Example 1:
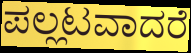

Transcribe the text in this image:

ಪಲ್ಲಟವಾದರೆ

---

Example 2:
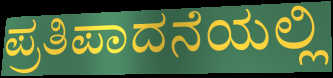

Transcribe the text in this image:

ಪ್ರತಿಪಾದನೆಯಲ್ಲಿ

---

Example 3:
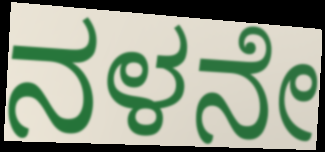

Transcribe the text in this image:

ನಳನೇ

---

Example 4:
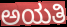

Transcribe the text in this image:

ಅಯತಿ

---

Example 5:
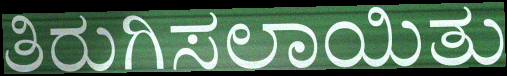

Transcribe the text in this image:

ತಿರುಗಿಸಲಾಯಿತು